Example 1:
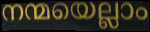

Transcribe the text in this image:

നന്മയെല്ലാം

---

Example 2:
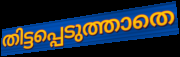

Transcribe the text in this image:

തിട്ടപ്പെടുത്താതെ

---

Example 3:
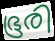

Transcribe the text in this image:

ഭൂരി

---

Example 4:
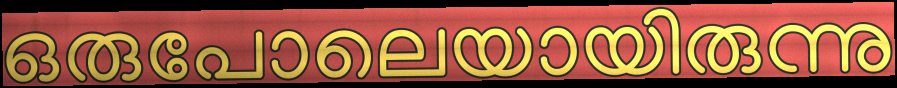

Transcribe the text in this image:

ഒരുപോലെയായിരുന്നു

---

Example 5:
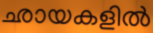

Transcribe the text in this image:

ഛായകളിൽ